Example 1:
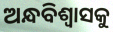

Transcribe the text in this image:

ଅନ୍ଧବିଶ୍ୱାସକୁ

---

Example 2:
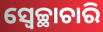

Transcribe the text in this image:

ସ୍ଵେଚ୍ଛାଚାରି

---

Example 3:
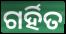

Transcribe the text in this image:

ଗର୍ହିତ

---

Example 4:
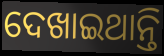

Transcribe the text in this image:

ଦେଖାଇଥାନ୍ତି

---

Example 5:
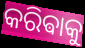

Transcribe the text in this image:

କରିଵାକୁ